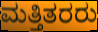
ಮತ್ತಿತರರು